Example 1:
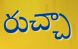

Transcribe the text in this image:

రుచ్చా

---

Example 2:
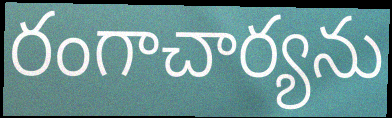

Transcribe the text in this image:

రంగాచార్యను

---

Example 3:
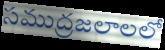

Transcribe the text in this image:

సముద్రజలాలలో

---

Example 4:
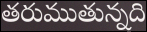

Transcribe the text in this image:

తరుముతున్నది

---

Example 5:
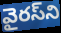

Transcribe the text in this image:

వైరస్‌ని